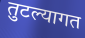
तुटल्यागत